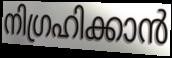
നിഗ്രഹിക്കാൻ